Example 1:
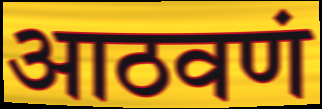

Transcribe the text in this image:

आठवणं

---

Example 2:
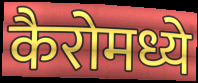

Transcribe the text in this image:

कैरोमध्ये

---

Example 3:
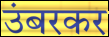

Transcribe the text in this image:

उंबरकर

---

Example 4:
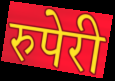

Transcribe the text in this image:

रुपेरी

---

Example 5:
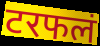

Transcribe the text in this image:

टरफलं